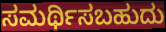
ಸಮರ್ಥಿಸಬಹುದು